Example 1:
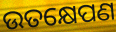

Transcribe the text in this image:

ଉତକ୍ଷେପଣ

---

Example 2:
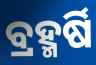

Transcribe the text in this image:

ବ୍ରହ୍ମର୍ଷି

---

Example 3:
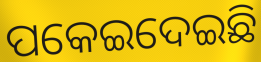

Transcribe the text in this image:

ପକେଇଦେଇଛି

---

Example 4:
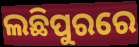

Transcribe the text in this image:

ଲଛିପୁରରେ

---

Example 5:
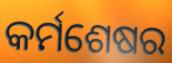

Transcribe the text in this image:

କର୍ମଶେଷର